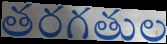
తరగతుల